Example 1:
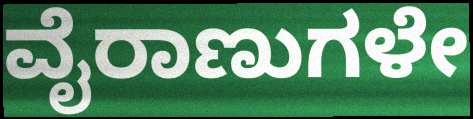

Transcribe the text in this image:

ವೈರಾಣುಗಳೇ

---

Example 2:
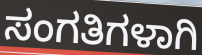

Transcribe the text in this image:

ಸಂಗತಿಗಳಾಗಿ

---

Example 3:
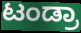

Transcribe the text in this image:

ಟಂಡ್ರಾ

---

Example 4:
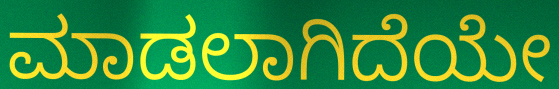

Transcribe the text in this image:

ಮಾಡಲಾಗಿದೆಯೇ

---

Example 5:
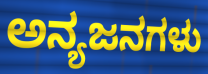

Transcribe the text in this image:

ಅನ್ಯಜನಗಳು